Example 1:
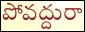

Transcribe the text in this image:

పోవద్దురా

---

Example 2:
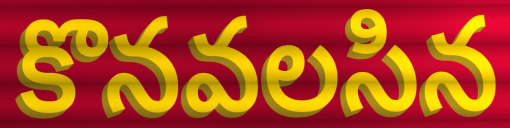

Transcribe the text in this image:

కొనవలసిన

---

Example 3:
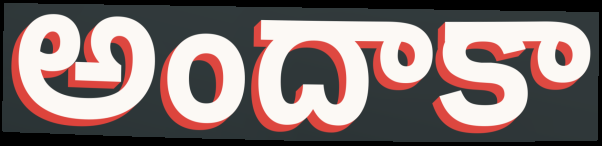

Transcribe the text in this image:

అందాకా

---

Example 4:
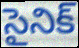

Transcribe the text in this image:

సైనిక్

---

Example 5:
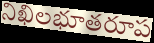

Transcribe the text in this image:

నిఖిలభూతరూప